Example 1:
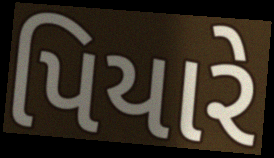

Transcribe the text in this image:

પિયારે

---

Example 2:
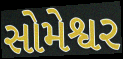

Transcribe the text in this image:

સોમેશ્વર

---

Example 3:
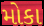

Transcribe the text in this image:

મોકા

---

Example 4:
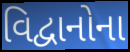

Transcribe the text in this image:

વિદ્વાનોના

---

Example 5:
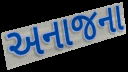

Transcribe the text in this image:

અનાજના